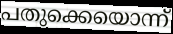
പതുക്കെയൊന്ന്